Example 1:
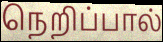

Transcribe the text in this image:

நெறிப்பால்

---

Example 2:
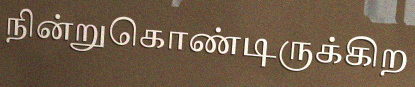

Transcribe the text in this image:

நின்றுகொண்டிருக்கிற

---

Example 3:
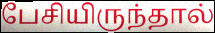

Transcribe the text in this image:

பேசியிருந்தால்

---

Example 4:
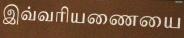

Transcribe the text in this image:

இவ்வரியணையை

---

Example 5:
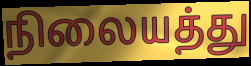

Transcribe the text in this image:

நிலையத்து